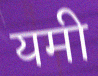
यमी